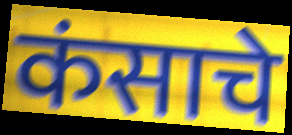
कंसाचे